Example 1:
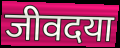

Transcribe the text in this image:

जीवदया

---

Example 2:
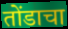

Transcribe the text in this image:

तोंडाचा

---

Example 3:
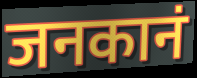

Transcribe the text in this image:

जनकानं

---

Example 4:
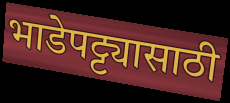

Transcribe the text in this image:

भाडेपट्ट्यासाठी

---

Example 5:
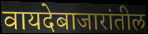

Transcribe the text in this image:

वायदेबाजारांतील